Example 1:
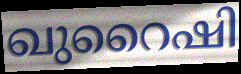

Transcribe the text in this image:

ഖുറൈഷി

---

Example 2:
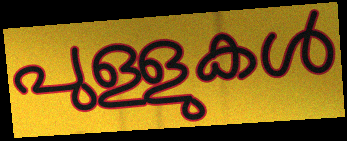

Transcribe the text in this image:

പുള്ളുകൾ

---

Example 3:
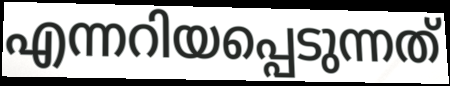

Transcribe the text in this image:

എന്നറിയപ്പെടുന്നത്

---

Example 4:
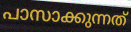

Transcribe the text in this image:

പാസാക്കുന്നത്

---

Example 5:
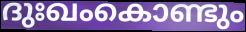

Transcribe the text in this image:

ദുഃഖംകൊണ്ടും